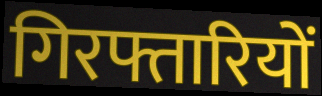
गिरफ्तारियों